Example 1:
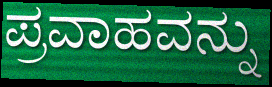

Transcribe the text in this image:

ಪ್ರವಾಹವನ್ನು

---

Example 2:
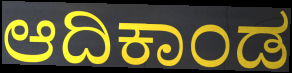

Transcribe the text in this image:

ಆದಿಕಾಂಡ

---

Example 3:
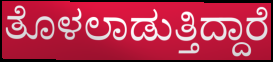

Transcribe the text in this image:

ತೊಳಲಾಡುತ್ತಿದ್ದಾರೆ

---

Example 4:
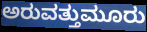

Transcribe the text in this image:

ಅರುವತ್ತುಮೂರು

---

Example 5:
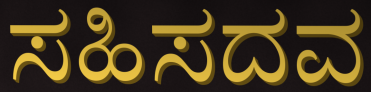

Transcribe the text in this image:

ಸಹಿಸದವ